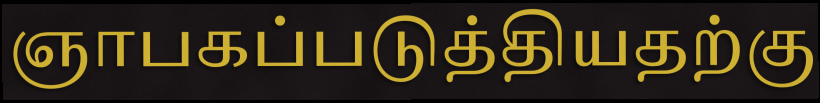
ஞாபகப்படுத்தியதற்கு